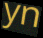
yn